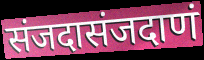
संजदासंजदाणं